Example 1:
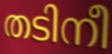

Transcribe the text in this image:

തടിനീ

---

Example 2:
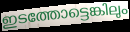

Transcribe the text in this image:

ഇടത്തോട്ടെങ്കിലും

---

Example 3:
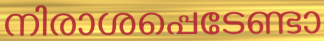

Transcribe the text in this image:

നിരാശപ്പെടേണ്ടാ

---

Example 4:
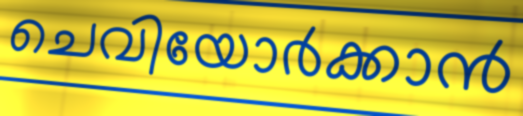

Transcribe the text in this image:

ചെവിയോർക്കാൻ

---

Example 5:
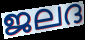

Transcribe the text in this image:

ജലദ